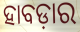
ହାବଡ଼ାର